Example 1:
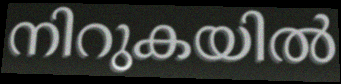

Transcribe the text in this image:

നിറുകയിൽ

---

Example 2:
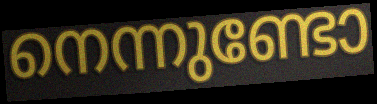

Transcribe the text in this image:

നെന്നുണ്ടോ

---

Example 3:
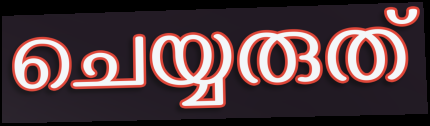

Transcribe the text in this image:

ചെയ്യരുത്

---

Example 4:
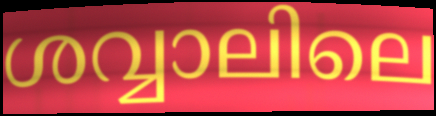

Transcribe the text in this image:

ശവ്വാലിലെ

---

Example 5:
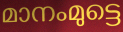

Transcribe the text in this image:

മാനംമുട്ടെ